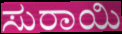
ಸುರಾಯಿ